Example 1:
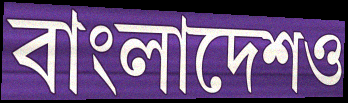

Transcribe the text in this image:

বাংলাদেশও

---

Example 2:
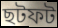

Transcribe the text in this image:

ছটফট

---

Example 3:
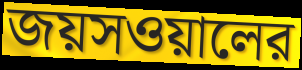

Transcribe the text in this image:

জয়সওয়ালের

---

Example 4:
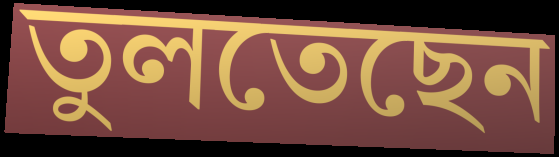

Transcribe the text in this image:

তুলতেছেন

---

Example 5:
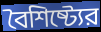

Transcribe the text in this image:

বৈশিষ্ট্যের